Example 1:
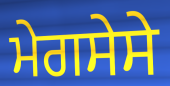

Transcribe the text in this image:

ਮੇਗਸੇਸੇ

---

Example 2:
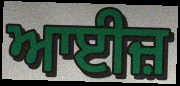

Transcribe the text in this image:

ਆਈਜ਼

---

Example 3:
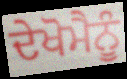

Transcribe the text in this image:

ਦੇਖੋਮੈਨੂੰ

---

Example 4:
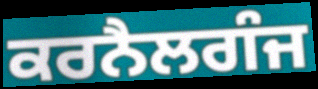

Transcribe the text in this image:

ਕਰਨੈਲਗੰਜ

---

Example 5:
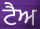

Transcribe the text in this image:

ਟੈਅ